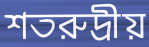
শতৰুদ্ৰীয়